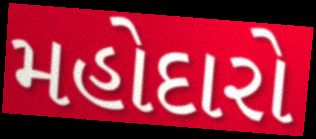
મહોદારો